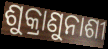
ଶୁକ୍ରାଣୁନାଶୀ